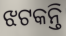
ଝଟକନ୍ତି